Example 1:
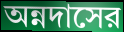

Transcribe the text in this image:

অন্নদাসের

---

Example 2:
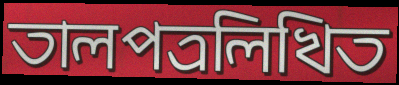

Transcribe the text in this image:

তালপত্রলিখিত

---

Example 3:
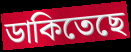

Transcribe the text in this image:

ডাকিতেছে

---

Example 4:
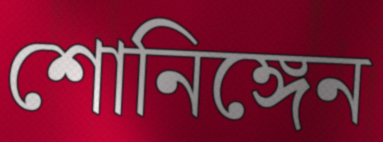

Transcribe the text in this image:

শোনিঙ্গেন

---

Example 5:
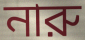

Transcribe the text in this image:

নারু